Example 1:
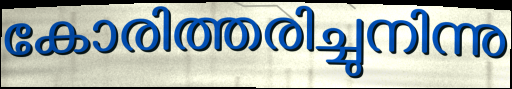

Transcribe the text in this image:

കോരിത്തരിച്ചുനിന്നു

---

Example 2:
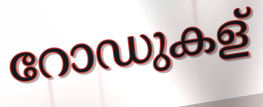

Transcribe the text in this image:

റോഡുകള്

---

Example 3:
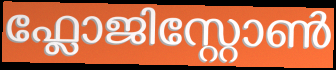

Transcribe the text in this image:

ഫ്ലോജിസ്റ്റോൺ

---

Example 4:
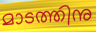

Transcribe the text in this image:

മാടത്തിനു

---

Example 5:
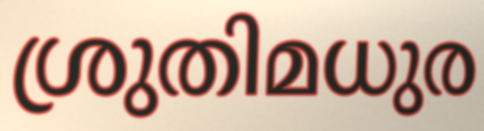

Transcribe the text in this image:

ശ്രുതിമധുര